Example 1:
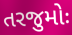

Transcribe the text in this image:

તરજુમોઃ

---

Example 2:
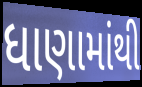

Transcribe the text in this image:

ધાણામાંથી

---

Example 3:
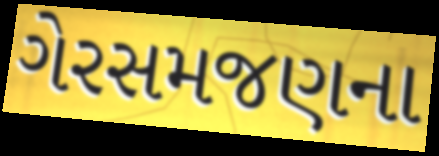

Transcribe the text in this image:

ગેરસમજણના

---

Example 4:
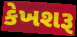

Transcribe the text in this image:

કેખશરૂ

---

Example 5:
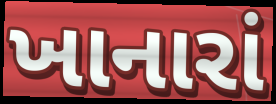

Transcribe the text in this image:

ખાનારાં